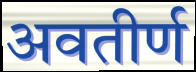
अवतीर्ण